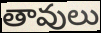
తావులు